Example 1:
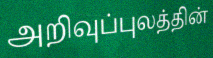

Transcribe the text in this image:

அறிவுப்புலத்தின்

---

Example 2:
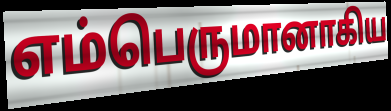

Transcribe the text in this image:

எம்பெருமானாகிய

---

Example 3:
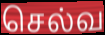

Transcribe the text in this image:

செல்வ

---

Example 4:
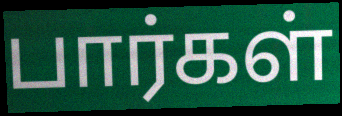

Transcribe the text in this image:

பார்கள்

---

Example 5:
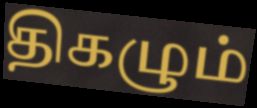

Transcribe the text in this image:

திகழும்